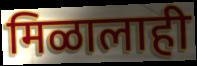
मिळालाही